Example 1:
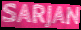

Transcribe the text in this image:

SARJAN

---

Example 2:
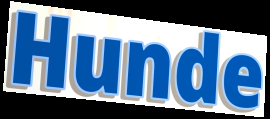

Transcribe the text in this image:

Hunde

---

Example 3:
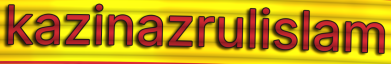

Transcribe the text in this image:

kazinazrulislam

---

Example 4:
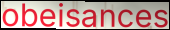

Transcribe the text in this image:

obeisances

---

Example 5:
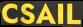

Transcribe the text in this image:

CSAIL